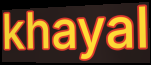
khayal